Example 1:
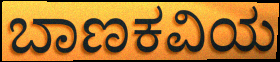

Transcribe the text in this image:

ಬಾಣಕವಿಯ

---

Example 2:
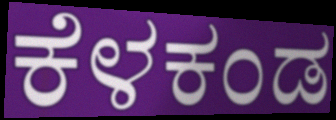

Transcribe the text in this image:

ಕೆಳಕಂಡ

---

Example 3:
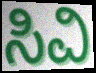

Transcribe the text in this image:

ಸಿವಿ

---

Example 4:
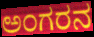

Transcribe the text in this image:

ಅಂಗರನ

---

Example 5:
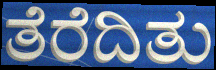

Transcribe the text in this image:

ತೆರೆದಿತು